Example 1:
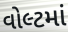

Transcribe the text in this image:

વોલ્ટમાં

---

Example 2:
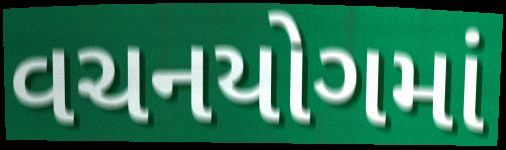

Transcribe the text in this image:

વચનયોગમાં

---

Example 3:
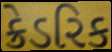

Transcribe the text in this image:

ક્રેડરિક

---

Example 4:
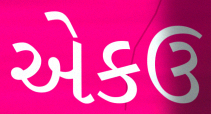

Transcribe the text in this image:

એકઉ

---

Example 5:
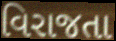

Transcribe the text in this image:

વિરાજતા